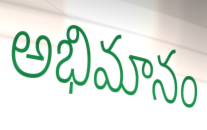
అభిమానం